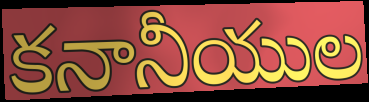
కనానీయుల